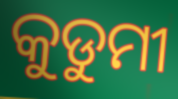
କୁଡୁମୀ